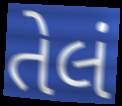
તેલં